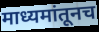
माध्यमांतूनच